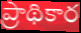
ప్రాథికార